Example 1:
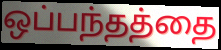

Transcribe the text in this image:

ஒப்பந்தத்தை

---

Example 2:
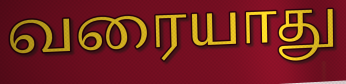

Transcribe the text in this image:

வரையாது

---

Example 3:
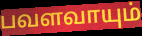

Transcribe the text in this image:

பவளவாயும்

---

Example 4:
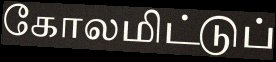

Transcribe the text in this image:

கோலமிட்டுப்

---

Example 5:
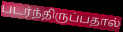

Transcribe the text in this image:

படர்ந்திருப்பதால்